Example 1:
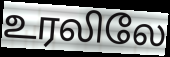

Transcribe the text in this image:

உரலிலே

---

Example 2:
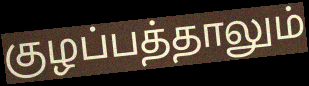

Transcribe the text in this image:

குழப்பத்தாலும்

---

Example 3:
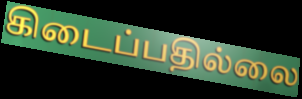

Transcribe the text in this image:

கிடைப்பதில்லை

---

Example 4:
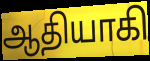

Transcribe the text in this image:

ஆதியாகி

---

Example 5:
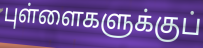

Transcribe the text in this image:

புள்ளைகளுக்குப்